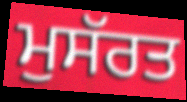
ਮੁਸੱਰਤ